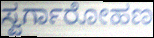
ಸ್ವರ್ಗಾರೋಹಣ